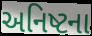
અનિષ્ટના